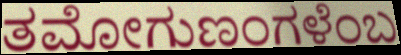
ತಮೋಗುಣಂಗಳೆಂಬ